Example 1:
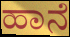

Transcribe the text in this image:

ಹಾನೆ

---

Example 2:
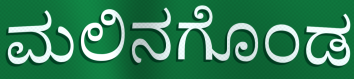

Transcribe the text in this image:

ಮಲಿನಗೊಂಡ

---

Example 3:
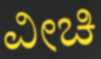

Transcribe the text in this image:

ವೀಚಿ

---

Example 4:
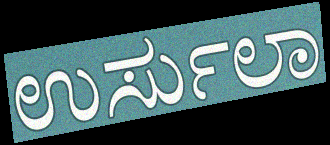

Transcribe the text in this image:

ಉರ್ಸುಲಾ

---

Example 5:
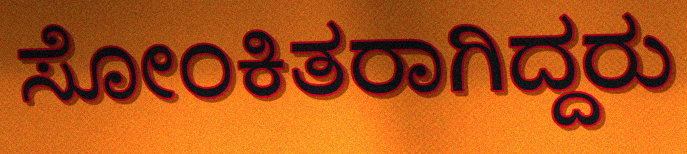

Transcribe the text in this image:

ಸೋಂಕಿತರಾಗಿದ್ದರು